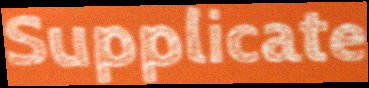
Supplicate